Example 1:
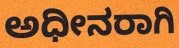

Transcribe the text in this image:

ಅಧೀನರಾಗಿ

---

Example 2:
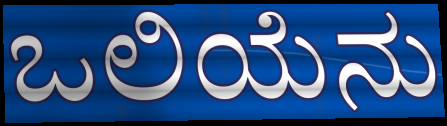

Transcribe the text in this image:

ಒಲಿಯೆನು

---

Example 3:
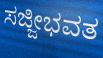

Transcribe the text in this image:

ಸಜ್ಜೀಭವತ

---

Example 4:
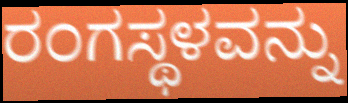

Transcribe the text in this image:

ರಂಗಸ್ಥಳವನ್ನು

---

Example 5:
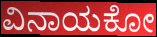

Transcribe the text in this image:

ವಿನಾಯಕೋ